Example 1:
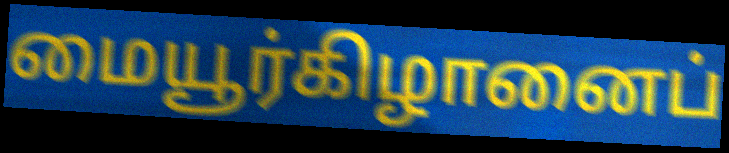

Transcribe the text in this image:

மையூர்கிழானைப்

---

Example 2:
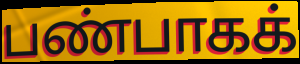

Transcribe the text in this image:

பண்பாகக்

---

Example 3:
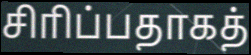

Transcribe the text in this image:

சிரிப்பதாகத்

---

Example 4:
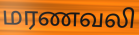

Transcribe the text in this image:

மரணவலி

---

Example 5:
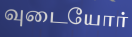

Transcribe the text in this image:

வுடையோர்